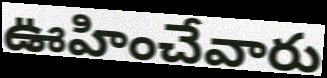
ఊహించేవారు